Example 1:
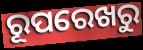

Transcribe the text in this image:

ରୂପରେଖରୁ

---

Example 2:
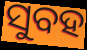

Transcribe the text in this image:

ସୁବହ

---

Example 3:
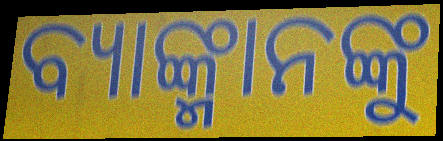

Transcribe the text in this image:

ବ୍ୟାଙ୍କ୍ମାନଙ୍କୁ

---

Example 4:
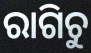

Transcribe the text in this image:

ରାଗିଚୁ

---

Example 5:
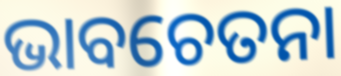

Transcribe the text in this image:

ଭାବଚେତନା